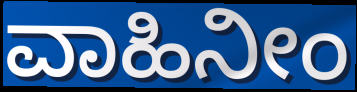
ವಾಹಿನೀಂ